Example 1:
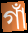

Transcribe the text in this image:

গাঁ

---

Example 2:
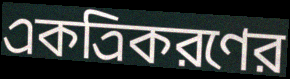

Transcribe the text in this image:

একত্রিকরণের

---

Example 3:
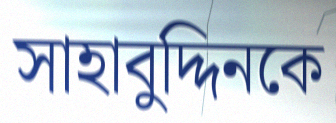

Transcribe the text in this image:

সাহাবুদ্দিনকে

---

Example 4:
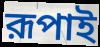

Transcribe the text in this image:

রূপাই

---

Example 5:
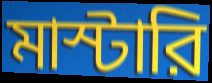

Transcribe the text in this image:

মাস্টারি